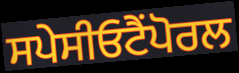
ਸਪੇਸੀਓਟੈਂਪੋਰਲ